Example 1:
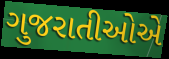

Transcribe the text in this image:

ગુજરાતીઓએ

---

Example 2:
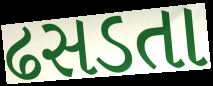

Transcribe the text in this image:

ઢસડતા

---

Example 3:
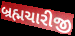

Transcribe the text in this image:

બ્રહ્મચારીજી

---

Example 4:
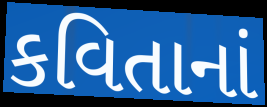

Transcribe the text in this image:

કવિતાનાં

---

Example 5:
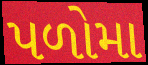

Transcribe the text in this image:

પળોમા